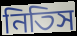
নিতিস